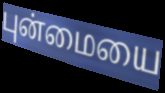
புன்மையை